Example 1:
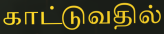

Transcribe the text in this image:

காட்டுவதில்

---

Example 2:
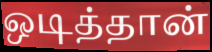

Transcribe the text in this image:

ஒடித்தான்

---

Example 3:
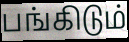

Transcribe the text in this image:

பங்கிடும்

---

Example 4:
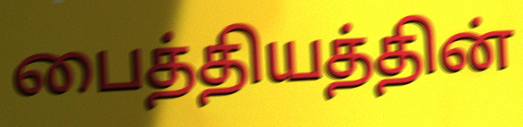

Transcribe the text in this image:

பைத்தியத்தின்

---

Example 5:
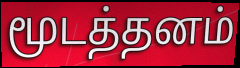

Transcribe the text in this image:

மூடத்தனம்